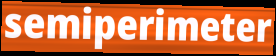
semiperimeter